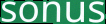
sonus